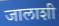
जालाशी